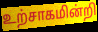
உற்சாகமின்றி